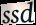
ssd